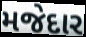
મજેદાર